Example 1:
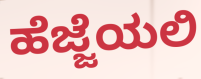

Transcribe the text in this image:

ಹೆಜ್ಜೆಯಲಿ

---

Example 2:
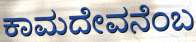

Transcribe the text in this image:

ಕಾಮದೇವನೆಂಬ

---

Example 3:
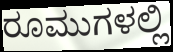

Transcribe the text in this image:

ರೂಮುಗಳಲ್ಲಿ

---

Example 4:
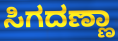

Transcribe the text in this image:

ಸಿಗದಣ್ಣಾ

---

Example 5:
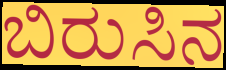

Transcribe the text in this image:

ಬಿರುಸಿನ